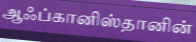
ஆஃப்கானிஸ்தானின்